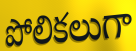
పోలికలుగా